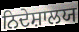
ਨਿਦੇਸ਼ਾਲਯ